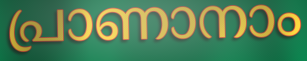
പ്രാണാനാം